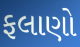
ફલાણો